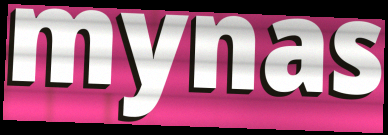
mynas